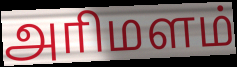
அரிமளம்